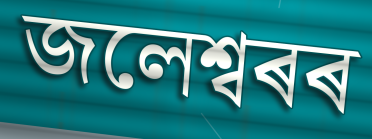
জলেশ্বৰৰ